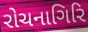
રોચનાગિરિ